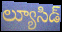
ల్యూసిడ్